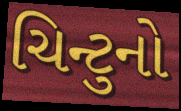
ચિન્ટુનો